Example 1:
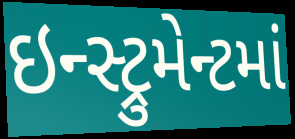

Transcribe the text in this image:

ઇન્સ્ટ્રુમેન્ટમાં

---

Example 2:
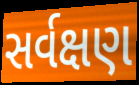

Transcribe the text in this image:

સર્વક્ષણ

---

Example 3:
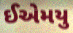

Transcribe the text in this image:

ઈએમયુ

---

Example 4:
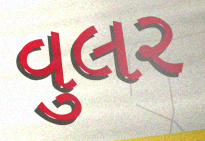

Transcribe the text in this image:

વુલર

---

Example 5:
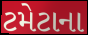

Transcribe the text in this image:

ટમેટાના